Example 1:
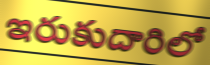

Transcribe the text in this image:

ఇరుకుదారిలో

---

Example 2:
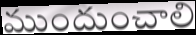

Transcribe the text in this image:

ముందుంచాలి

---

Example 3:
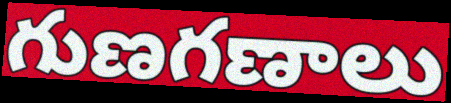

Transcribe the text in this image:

గుణగణాలు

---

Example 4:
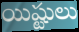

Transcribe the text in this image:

యిష్టులు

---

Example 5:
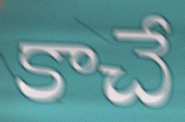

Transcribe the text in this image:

కాచే